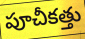
పూచీకత్తు